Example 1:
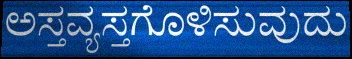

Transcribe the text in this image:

ಅಸ್ತವ್ಯಸ್ತಗೊಳಿಸುವುದು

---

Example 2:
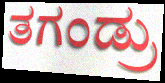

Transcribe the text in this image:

ತಗಂಡ್ರು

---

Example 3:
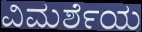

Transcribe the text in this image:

ವಿಮರ್ಶೆಯ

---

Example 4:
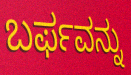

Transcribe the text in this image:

ಬರ್ಫವನ್ನು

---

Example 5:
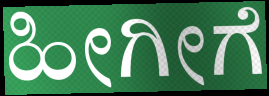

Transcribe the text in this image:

ಹೀಗೀಗೆ